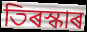
তিৰস্কাৰ